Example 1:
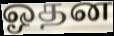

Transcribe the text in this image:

ஓதன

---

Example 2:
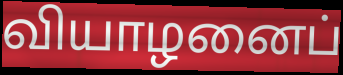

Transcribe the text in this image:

வியாழனைப்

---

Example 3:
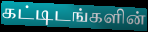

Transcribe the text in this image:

கட்டிடங்களின்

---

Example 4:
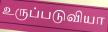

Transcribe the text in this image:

உருப்படுவியா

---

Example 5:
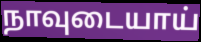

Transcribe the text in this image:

நாவுடையாய்